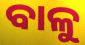
ବାଳୁ